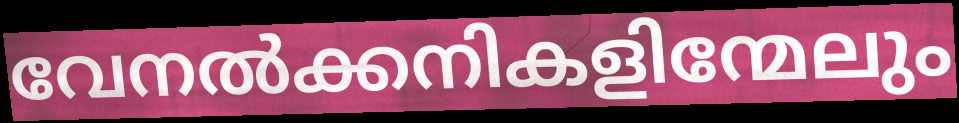
വേനൽക്കനികളിന്മേലും